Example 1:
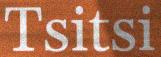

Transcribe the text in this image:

Tsitsi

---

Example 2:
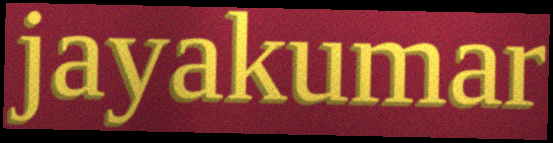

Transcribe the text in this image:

jayakumar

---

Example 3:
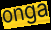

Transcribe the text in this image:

onga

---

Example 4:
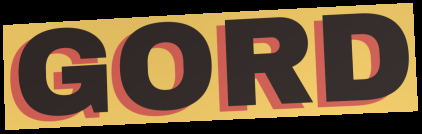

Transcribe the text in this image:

GORD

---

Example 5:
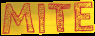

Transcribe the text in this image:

MITE